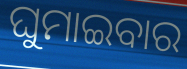
ଘୁମାଇବାର